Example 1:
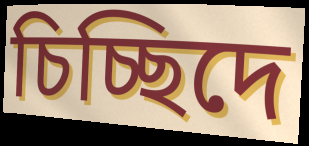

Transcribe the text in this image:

চিচ্ছিদে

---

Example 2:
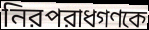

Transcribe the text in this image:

নিরপরাধগণকে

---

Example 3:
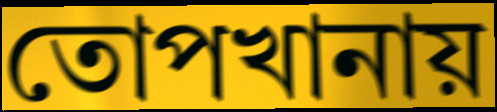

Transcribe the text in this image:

তোপখানায়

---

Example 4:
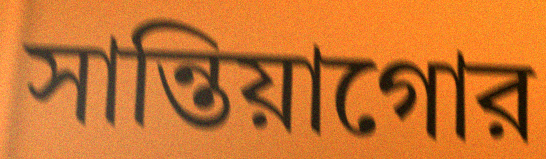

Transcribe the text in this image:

সান্তিয়াগোর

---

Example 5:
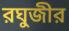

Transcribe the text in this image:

রঘুজীর